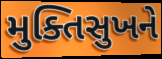
મુક્તિસુખને